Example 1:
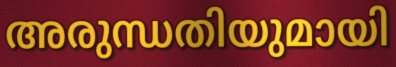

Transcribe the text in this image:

അരുന്ധതിയുമായി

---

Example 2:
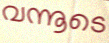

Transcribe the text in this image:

വന്നൂടെ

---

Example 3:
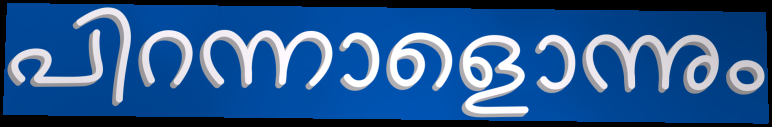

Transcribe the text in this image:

പിറന്നാളൊന്നും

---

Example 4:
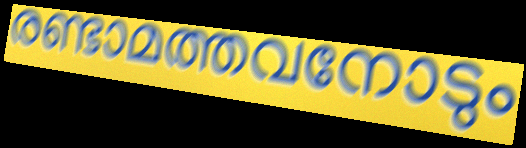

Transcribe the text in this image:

രണ്ടാമത്തവനോടും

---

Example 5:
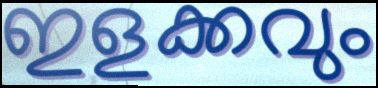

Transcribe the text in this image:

ഇളക്കവും